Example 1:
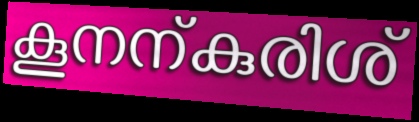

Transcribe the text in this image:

കൂനന്കുരിശ്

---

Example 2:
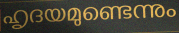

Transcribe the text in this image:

ഹൃദയമുണ്ടെന്നും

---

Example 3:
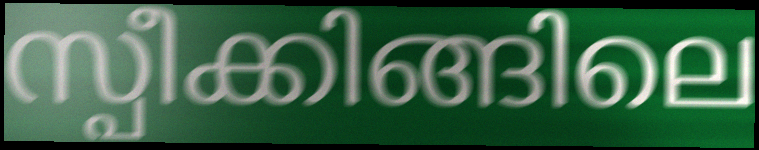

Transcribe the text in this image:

സ്പീക്കിങ്ങിലെ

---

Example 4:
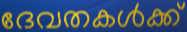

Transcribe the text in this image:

ദേവതകൾക്ക്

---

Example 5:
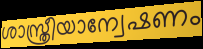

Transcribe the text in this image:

ശാസ്ത്രീയാന്വേഷണം